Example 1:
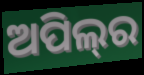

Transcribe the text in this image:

ଅପିଲ୍‌ର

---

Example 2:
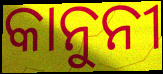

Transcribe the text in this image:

କାନୁନୀ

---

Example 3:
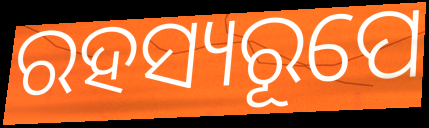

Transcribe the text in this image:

ରହସ୍ୟରୂପେ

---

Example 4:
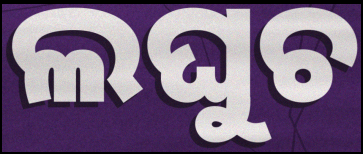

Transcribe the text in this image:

ଲଘୁଚ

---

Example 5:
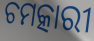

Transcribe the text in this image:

ଚମତ୍କାରୀ